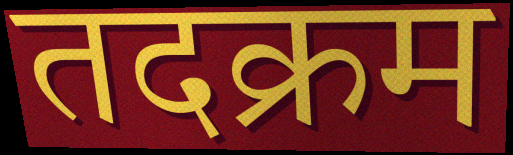
तदक्रम